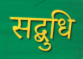
सद्बुधि